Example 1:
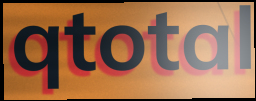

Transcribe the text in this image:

qtotal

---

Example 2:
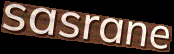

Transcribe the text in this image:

sasrane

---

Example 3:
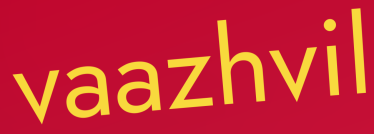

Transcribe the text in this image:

vaazhvil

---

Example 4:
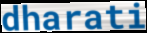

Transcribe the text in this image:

dharati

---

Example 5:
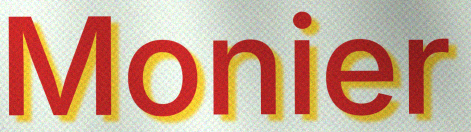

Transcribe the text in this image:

Monier